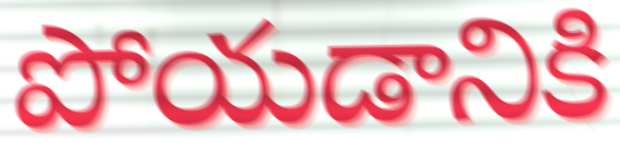
పోయడానికి